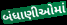
બંધાણીઓમાં